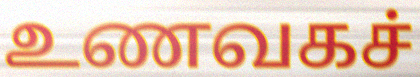
உணவகச்